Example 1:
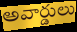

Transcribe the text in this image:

అవార్డులు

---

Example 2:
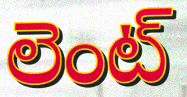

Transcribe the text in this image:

లెంట్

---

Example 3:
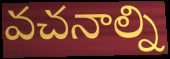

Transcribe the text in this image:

వచనాల్ని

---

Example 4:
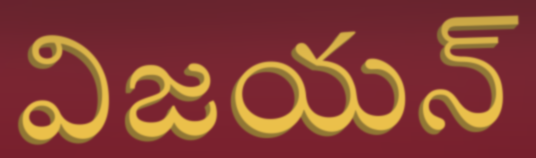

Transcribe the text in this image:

విజయన్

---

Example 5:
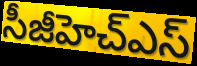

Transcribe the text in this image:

సీజీహెచ్ఎస్